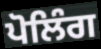
ਪੋਲਿੰਗ